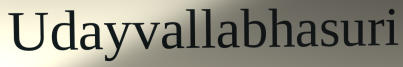
Udayvallabhasuri